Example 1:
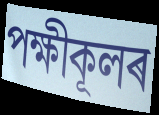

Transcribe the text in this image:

পক্ষীকূলৰ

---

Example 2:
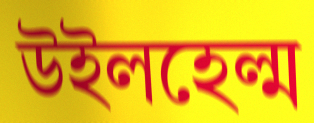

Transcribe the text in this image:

উইলহেল্ম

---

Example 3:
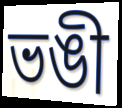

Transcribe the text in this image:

ভঙী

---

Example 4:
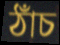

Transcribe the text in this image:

ঠাঁচ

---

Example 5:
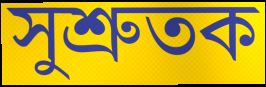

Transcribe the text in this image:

সুশ্ৰুতক